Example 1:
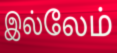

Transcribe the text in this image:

இல்லேம்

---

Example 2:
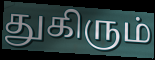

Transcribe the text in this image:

துகிரும்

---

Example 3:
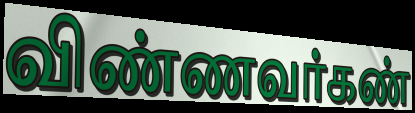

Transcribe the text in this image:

விண்ணவர்கண்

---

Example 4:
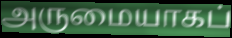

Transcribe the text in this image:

அருமையாகப்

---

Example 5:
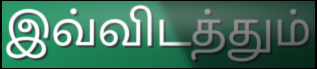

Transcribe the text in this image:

இவ்விடத்தும்